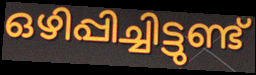
ഒഴിപ്പിച്ചിട്ടുണ്ട്